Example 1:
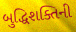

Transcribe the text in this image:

બુદ્ધિશક્તિની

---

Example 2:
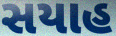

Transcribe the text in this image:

સયાહ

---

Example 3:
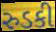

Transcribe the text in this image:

રુડકી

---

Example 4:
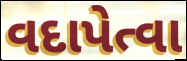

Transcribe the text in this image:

વદાપેત્વા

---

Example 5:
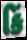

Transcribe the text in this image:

કિં